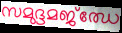
സമുദ്ദമജ്ഝേ